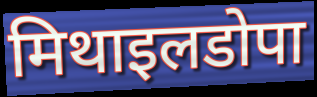
मिथाइलडोपा